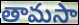
తామసా